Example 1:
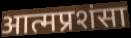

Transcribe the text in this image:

आत्मप्रशंसा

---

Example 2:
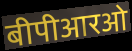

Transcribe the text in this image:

बीपीआरओ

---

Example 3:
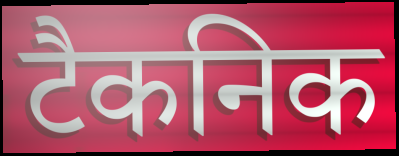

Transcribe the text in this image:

टैकनिक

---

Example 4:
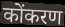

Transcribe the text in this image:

कोंकरण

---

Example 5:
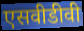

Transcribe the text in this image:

एसवीडीवी